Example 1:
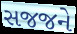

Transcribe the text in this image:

સજજને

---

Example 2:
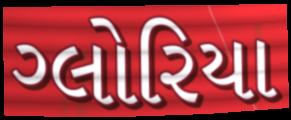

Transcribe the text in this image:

ગ્લોરિયા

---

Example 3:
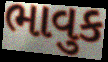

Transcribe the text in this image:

ભાવુક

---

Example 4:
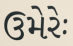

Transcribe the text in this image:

ઉમેરેઃ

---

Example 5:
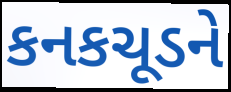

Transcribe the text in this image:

કનકચૂડને